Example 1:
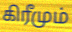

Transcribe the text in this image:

கிரீமும்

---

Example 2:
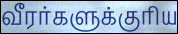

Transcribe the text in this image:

வீரர்களுக்குரிய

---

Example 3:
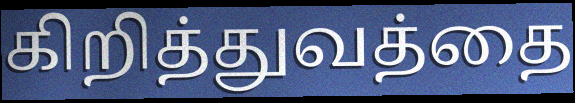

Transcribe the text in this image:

கிறித்துவத்தை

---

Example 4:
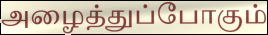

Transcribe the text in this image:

அழைத்துப்போகும்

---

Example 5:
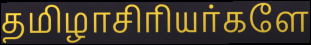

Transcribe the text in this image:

தமிழாசிரியர்களே